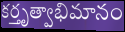
కర్తృత్వాభిమానం